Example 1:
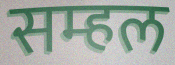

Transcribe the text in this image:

सम्हल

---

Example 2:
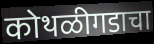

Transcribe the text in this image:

कोथळीगडाचा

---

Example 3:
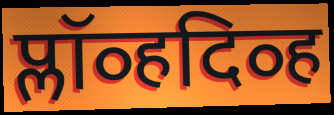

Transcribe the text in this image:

प्लॉव्हदिव्ह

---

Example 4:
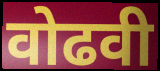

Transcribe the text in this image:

वोढवी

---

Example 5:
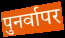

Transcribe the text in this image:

पुनर्वापर